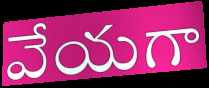
వేయగా